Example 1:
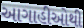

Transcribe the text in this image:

આગાહીઓથી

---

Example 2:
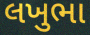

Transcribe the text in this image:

લખુભા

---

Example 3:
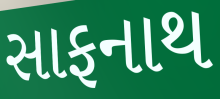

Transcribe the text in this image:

સાફનાથ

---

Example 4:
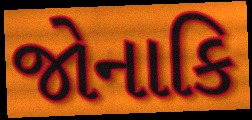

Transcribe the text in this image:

જોનાકિ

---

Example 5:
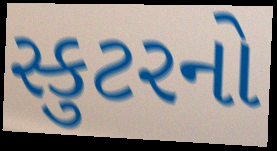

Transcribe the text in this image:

સ્કુટરનો